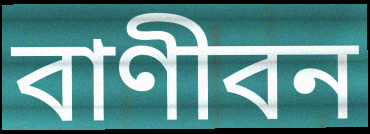
বাণীবন